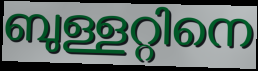
ബുള്ളറ്റിനെ